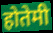
होतेमी